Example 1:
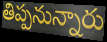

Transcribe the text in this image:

తిప్పనున్నారు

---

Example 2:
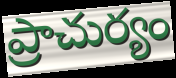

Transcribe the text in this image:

ప్రాచుర్యం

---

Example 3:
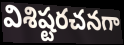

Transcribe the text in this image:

విశిష్టరచనగా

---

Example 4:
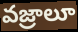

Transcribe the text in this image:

వజ్రాలూ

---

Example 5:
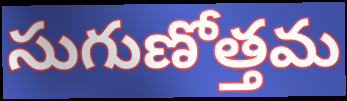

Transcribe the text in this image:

సుగుణోత్తమ